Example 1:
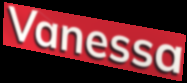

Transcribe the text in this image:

Vanessa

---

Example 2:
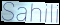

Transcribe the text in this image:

Sahili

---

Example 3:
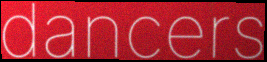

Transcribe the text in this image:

dancers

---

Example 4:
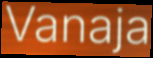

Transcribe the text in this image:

Vanaja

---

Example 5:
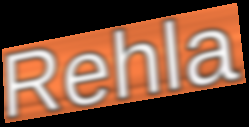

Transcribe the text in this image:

Rehla